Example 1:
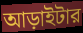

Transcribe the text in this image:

আড়াইটার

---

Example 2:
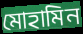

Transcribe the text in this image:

মোহামিন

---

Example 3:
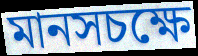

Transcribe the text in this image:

মানসচক্ষে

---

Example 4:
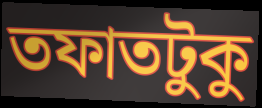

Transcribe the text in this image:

তফাতটুকু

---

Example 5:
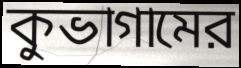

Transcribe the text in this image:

কুভাগামের